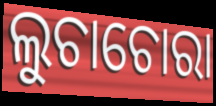
ଲୁଚାଚୋରା